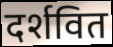
दर्शवित